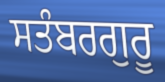
ਸਤੰਬਰਗੁਰੂ